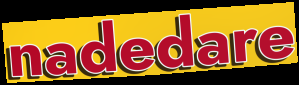
nadedare